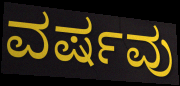
ವರ್ಷವು